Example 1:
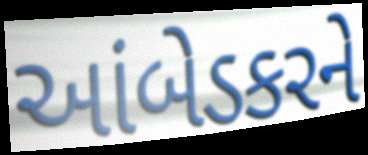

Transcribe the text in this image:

આંબેડકરને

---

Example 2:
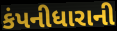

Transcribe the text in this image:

કંપનીધારાની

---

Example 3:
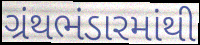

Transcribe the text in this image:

ગ્રંથભંડારમાંથી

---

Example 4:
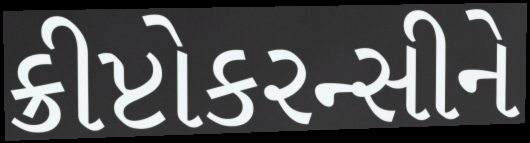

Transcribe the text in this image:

ક્રીપ્ટોકરન્સીને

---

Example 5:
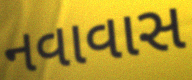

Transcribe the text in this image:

નવાવાસ